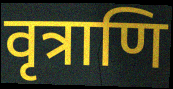
वृत्राणि